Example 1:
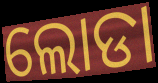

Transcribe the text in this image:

ଲୋଡା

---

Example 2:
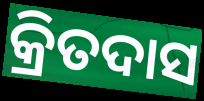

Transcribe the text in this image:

କ୍ରିତଦାସ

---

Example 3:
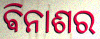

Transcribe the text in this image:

ଵିନାଶର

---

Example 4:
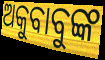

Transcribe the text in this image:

ଅକୁବାବୁଙ୍କ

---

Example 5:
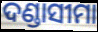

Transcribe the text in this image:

ଦଣ୍ଡାସୀମା